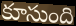
కూసుంది